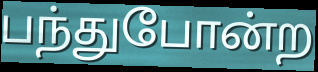
பந்துபோன்ற